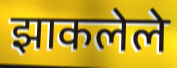
झाकलेले